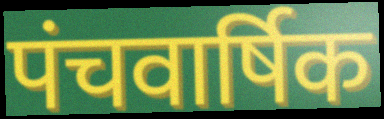
पंचवार्षिक